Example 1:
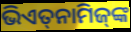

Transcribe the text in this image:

ଭିଏତ୍‌ନାମିଜ୍‌ଙ୍କ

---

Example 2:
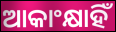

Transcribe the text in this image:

ଆକାଂକ୍ଷାହିଁ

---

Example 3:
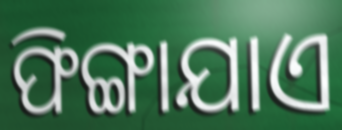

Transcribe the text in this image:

ଫିଙ୍ଗାଯାଏ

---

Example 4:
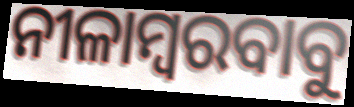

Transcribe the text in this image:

ନୀଳାମ୍ବରବାବୁ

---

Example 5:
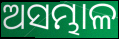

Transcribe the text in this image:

ଅସମ୍ଭାଳ